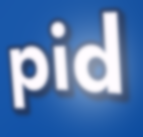
pid